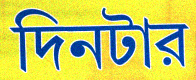
দিনটার